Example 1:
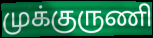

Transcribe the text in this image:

முக்குருணி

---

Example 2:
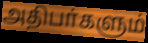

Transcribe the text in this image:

அதிபர்களும்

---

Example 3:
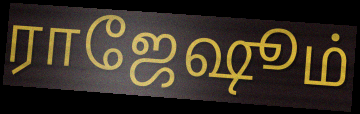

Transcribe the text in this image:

ராஜேஷூம்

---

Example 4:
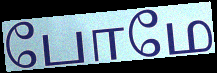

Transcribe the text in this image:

போமே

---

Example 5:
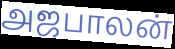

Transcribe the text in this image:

அஜபாலன்